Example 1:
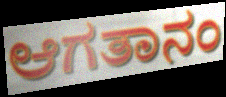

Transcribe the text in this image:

ಆಗತಾನಂ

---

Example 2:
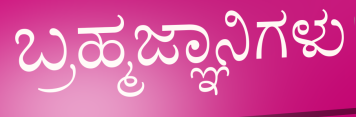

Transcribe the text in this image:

ಬ್ರಹ್ಮಜ್ಞಾನಿಗಳು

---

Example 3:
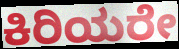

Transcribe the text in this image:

ಕಿರಿಯರೇ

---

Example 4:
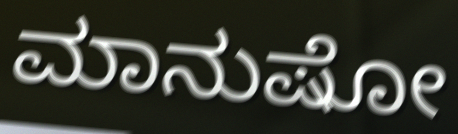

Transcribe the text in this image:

ಮಾನುಷೋ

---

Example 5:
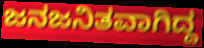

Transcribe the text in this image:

ಜನಜನಿತವಾಗಿದ್ದ